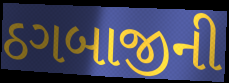
ઠગબાજીની